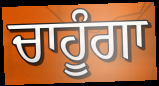
ਚਾਹੂੰਗਾ